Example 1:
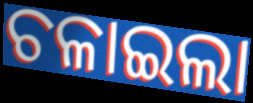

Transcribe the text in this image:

ଚଳାଇଲା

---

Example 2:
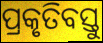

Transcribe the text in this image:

ପ୍ରକୃତିବସ୍ତୁ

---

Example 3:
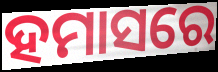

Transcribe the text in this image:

ହମାସରେ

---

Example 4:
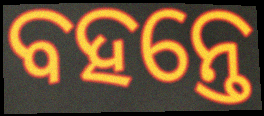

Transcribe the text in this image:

ବହନ୍ତେ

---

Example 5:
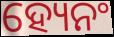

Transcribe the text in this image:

ହ୍ୟେନଂ